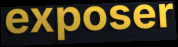
exposer